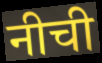
नीची